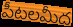
పీటలమీద